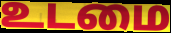
உடமை